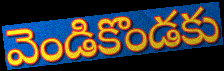
వెండికొండకు